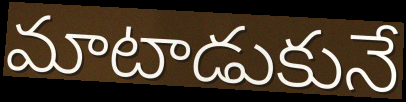
మాటాడుకునే